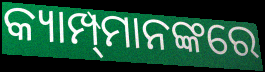
କ୍ୟାମ୍ପ୍‍ମାନଙ୍କରେ